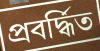
প্রবর্দ্ধিত